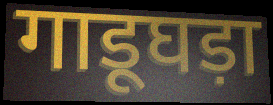
गाडूघड़ा